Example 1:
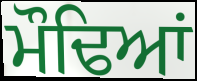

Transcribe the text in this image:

ਮੌਢਿਆਂ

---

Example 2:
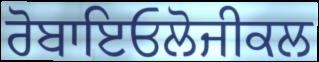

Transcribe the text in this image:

ਰੋਬਾਇਓਲੋਜੀਕਲ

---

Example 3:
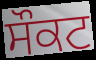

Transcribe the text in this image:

ਸੌਕਟ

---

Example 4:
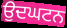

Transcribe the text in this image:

ਉਦਘਟਨ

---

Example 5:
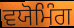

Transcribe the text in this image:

ਵਯੋਮਿੰਗ